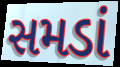
સમડાં